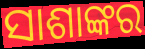
ସାଶାଙ୍କର